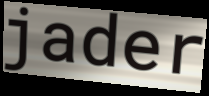
jader